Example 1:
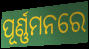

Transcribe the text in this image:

ପୂର୍ଣ୍ଣମନରେ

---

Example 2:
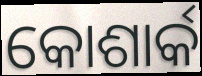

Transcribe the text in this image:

କୋଶାର୍କ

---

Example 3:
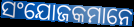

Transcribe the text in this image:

ସଂଯୋଜକମାନେ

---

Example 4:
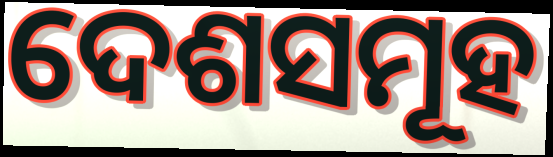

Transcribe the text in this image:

ଦେଶସମୂହ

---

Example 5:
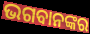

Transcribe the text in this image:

ଭଗବାନଙ୍କର